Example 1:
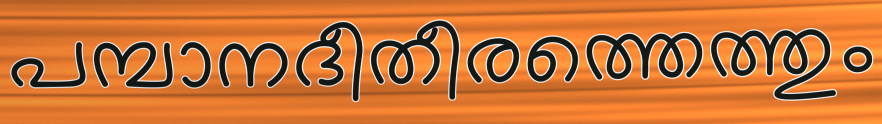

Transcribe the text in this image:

പമ്പാനദീതീരത്തെത്തും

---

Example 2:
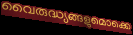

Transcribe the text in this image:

വൈരുദ്ധ്യങ്ങളുമൊക്കെ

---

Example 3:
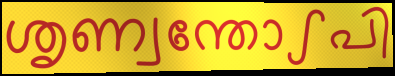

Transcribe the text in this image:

ശൃണ്വന്തോഽപി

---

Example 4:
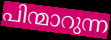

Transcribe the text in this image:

പിന്മാറുന്ന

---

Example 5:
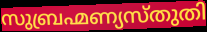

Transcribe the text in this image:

സുബ്രഹ്മണ്യസ്തുതി